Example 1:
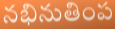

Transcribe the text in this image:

నభినుతింప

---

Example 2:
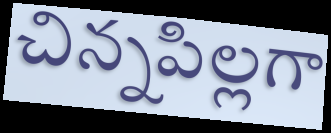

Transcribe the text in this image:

చిన్నపిల్లగా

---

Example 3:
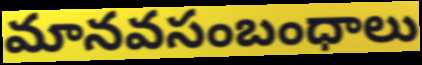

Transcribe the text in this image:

మానవసంబంధాలు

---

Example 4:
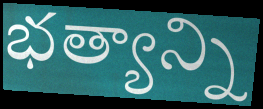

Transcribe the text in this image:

భత్యాన్ని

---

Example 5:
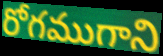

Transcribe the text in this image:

రోగముగాని